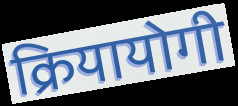
क्रियायोगी